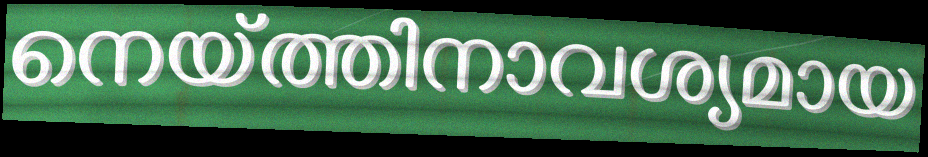
നെയ്ത്തിനാവശ്യമായ